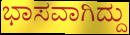
ಭಾಸವಾಗಿದ್ದು